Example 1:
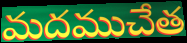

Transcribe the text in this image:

మదముచేత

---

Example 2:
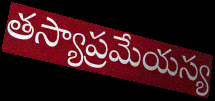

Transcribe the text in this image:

తస్యాప్రమేయస్య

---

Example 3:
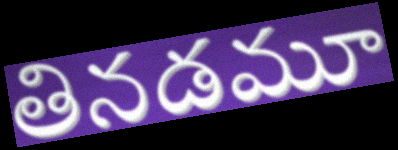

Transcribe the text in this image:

తినడమూ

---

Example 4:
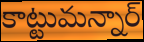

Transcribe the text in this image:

కాట్టుమన్నార్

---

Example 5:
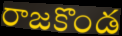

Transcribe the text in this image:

రాజకొండ